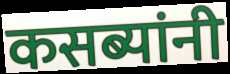
कसब्यांनी